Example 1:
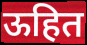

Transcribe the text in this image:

ऊहित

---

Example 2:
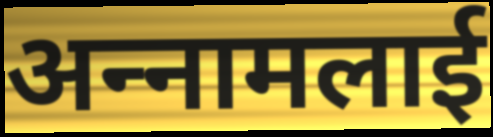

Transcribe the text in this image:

अन्‍नामलाई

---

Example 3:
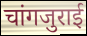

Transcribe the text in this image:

चांगजुराई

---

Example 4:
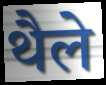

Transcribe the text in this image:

थैले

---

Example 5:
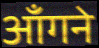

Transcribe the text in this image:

आँगने